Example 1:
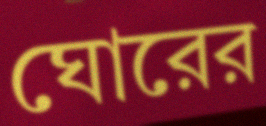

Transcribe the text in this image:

ঘোরের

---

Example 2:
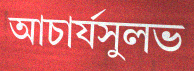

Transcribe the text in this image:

আচার্যসুলভ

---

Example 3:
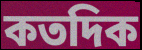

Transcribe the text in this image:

কতদিক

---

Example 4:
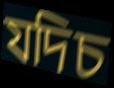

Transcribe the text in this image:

যদিচ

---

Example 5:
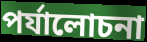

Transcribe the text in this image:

পর্যালোচনা